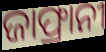
ଜାଫ୍ରାନୀ